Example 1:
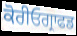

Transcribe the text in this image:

ਕੋਰੀਓਗ੍ਰਾਫਡ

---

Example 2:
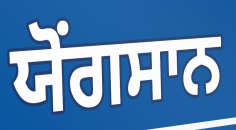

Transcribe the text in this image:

ਯੋਂਗਸਾਨ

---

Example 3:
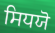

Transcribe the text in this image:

ਸਿਧਯੋ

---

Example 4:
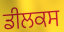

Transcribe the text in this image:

ਡੀਲਕਸ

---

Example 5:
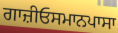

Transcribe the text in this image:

ਗਾਜ਼ੀਓਸਮਾਨਪਾਸਾ